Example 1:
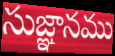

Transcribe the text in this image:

సుజ్ఞానము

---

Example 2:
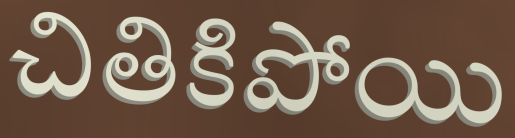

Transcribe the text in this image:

చితికిపోయి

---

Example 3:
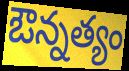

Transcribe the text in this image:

ఔన్నత్యం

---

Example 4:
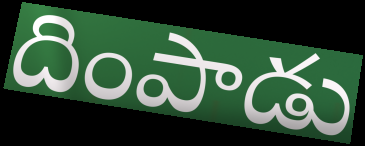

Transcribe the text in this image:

దింపాడు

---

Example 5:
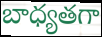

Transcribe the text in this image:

బాధ్యతగా